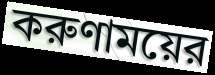
করুণাময়ের